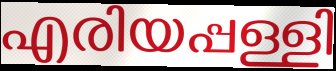
എരിയപ്പള്ളി